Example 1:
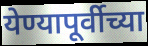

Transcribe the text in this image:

येण्यापूर्वीच्या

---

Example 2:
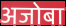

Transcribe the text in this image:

अजोबा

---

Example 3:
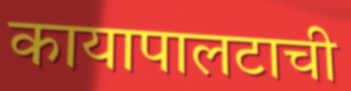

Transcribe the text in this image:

कायापालटाची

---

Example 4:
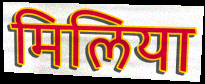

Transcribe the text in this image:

मिलिया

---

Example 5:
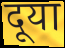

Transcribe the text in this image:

दूया